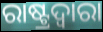
ରାଷ୍ଟ୍ରଦ୍ଵାରା